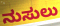
ನುಸುಲು